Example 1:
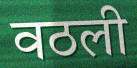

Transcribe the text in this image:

वठली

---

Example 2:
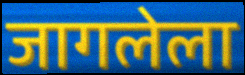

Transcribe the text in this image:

जागलेला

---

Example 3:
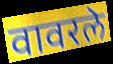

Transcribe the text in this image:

वावरले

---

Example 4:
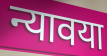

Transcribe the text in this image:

न्यावया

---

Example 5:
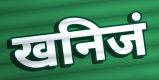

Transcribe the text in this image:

खनिजं